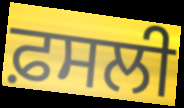
ਫ਼ਸਲੀ